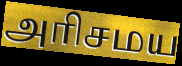
அரிசமய